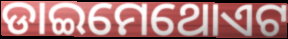
ଡାଇମେଥୋଏଟ